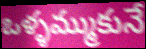
ఒళ్ళమ్ముకునే